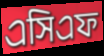
এসিএফ